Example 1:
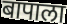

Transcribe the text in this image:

बापाला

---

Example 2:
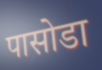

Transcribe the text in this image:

पासोडा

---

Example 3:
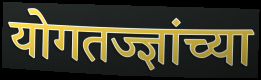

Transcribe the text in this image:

योगतज्ज्ञांच्या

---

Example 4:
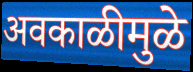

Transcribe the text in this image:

अवकाळीमुळे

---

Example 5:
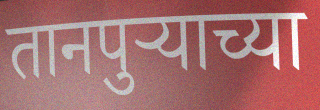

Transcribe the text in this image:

तानपुऱ्याच्या